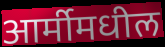
आर्मीमधील